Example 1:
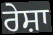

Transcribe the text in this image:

ਰੇਸ਼ਾ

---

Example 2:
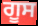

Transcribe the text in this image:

ਗੂਸ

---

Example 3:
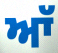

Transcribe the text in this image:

ਆੱ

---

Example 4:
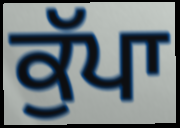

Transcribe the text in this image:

ਕੁੱਪਾ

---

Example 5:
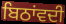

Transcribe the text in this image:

ਬਿਠਾਂਵਦੀ